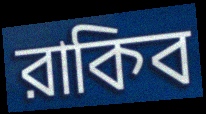
রাকিব